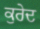
ਕੁਰੇਦ